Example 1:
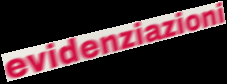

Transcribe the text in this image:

evidenziazioni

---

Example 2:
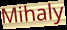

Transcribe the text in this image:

Mihaly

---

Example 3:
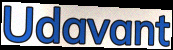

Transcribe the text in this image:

Udavant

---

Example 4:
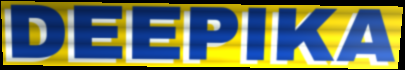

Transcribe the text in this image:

DEEPIKA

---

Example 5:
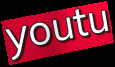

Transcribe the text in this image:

youtu